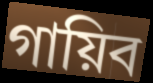
গায়িব